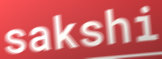
sakshi